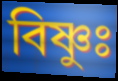
বিষ্ণুঃ